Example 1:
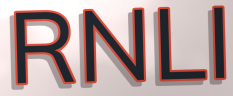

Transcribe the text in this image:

RNLI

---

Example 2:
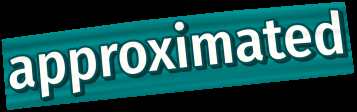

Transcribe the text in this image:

approximated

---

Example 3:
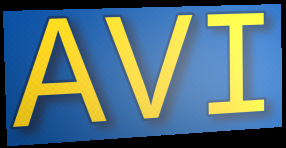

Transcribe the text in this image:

AVI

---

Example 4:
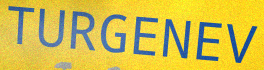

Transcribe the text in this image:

TURGENEV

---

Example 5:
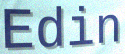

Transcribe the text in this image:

Edin